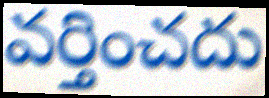
వర్తించదు